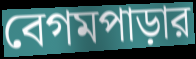
বেগমপাড়ার